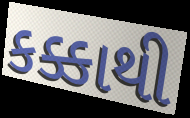
કક્કાથી